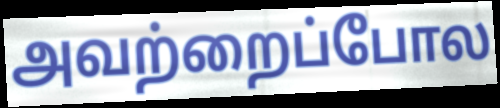
அவற்றைப்போல